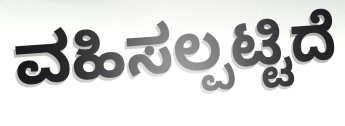
ವಹಿಸಲ್ಪಟ್ಟಿದೆ